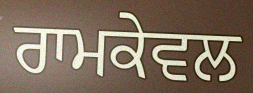
ਰਾਮਕੇਵਲ